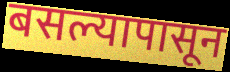
बसल्यापासून